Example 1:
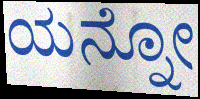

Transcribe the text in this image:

ಯನ್ನೋ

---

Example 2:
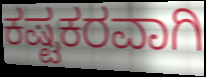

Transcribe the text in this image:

ಕಷ್ಟಕರವಾಗಿ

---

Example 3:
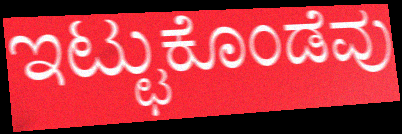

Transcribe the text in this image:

ಇಟ್ಟುಕೊಂಡೆವು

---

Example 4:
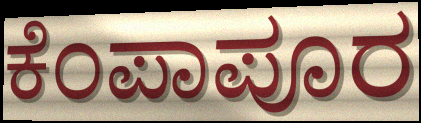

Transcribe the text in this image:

ಕೆಂಪಾಪೂರ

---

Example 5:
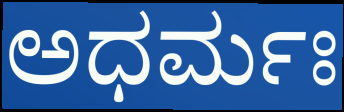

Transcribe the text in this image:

ಅಧರ್ಮಃ